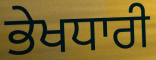
ਭੇਖਧਾਰੀ